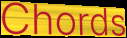
Chords